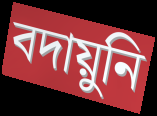
বদায়ুনি